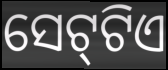
ସେଟ୍‍ଟିଏ